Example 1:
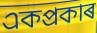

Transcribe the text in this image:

একপ্ৰকাৰ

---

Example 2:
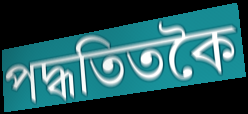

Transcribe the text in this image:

পদ্ধতিতকৈ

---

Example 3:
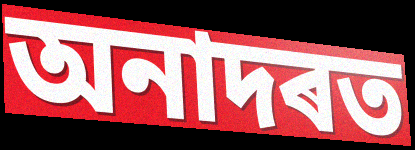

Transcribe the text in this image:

অনাদৰত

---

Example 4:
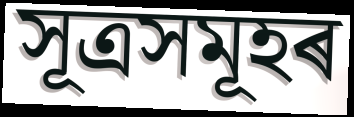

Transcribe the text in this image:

সূত্ৰসমূহৰ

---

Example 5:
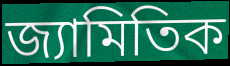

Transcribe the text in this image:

জ্যামিতিক